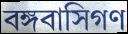
বঙ্গবাসিগণ